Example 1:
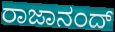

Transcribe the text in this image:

ರಾಜಾನಂದ್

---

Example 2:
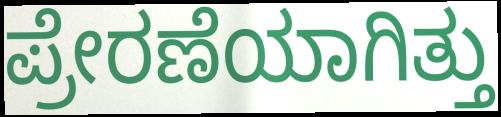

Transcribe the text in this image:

ಪ್ರೇರಣೆಯಾಗಿತ್ತು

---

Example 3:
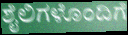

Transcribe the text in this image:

ಶೈಲಿಗಳೊಂದಿಗೆ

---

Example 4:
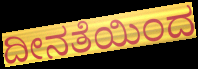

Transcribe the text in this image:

ದೀನತೆಯಿಂದ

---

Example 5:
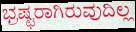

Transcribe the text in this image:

ಭ್ರಷ್ಟರಾಗಿರುವುದಿಲ್ಲ